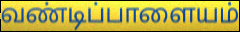
வண்டிப்பாளையம்